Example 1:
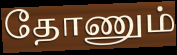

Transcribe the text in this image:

தோணும்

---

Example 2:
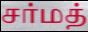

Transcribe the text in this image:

சர்மத்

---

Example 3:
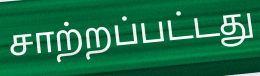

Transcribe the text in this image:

சாற்றப்பட்டது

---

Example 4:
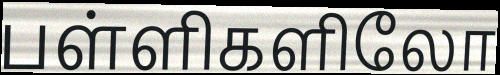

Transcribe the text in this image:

பள்ளிகளிலோ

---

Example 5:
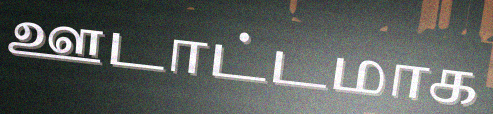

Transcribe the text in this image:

ஊடாட்டமாக